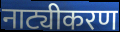
नाट्यीकरण